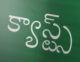
క్యాస్ట్స్